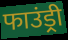
फाउंड्री